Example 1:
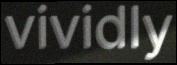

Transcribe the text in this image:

vividly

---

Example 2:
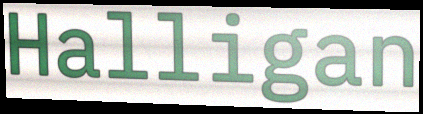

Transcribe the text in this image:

Halligan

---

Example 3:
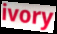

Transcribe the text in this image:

ivory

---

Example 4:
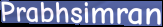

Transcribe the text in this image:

Prabhsimran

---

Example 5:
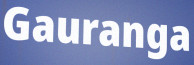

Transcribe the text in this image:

Gauranga